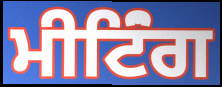
ਮੀਟਿਂੰਗ